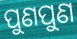
ପୁଣପୁଣ